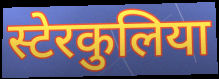
स्टेरकुलिया